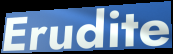
Erudite